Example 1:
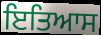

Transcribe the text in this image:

ਇਤਿਆਸ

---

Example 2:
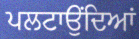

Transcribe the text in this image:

ਪਲਟਾਉਂਦਿਆਂ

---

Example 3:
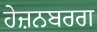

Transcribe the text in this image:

ਹੇਜ਼ਨਬਰਗ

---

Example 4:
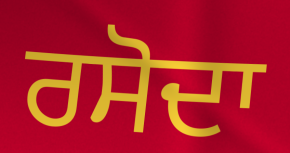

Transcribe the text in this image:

ਰਸੋਦਾ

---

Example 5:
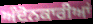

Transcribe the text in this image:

ਅੰਦੋਨਕਾਰੀਆਂ